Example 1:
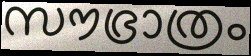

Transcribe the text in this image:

സൗഭ്രാത്രം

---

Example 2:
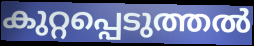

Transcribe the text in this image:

കുറ്റപ്പെടുത്തൽ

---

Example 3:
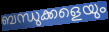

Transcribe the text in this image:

ബന്ധുക്കളെയും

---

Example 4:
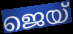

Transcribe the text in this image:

ജെയ്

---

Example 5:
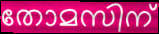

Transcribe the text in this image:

തോമസിന്